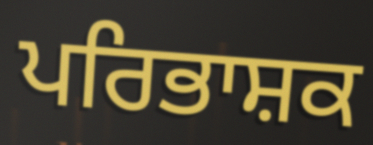
ਪਰਿਭਾਸ਼ਕ